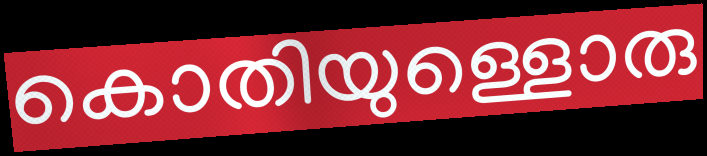
കൊതിയുള്ളൊരു